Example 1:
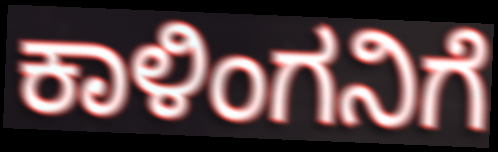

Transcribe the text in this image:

ಕಾಳಿಂಗನಿಗೆ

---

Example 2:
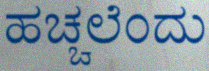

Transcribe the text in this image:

ಹಚ್ಚಲೆಂದು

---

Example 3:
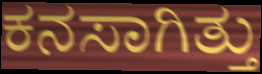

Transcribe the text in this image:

ಕನಸಾಗಿತ್ತು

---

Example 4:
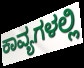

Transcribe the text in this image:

ಕಾವ್ಯಗಳಲ್ಲಿ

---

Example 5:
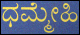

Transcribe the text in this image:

ಧಮ್ಮೇಹಿ